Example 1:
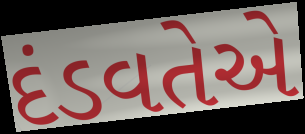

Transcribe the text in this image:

દંડવતેએ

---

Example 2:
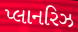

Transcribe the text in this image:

પ્લાનરિઝ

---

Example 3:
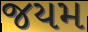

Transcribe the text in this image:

જયમ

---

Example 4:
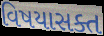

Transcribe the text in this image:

વિષયાસક્ત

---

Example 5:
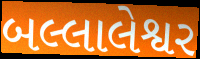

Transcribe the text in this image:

બલ્લાલેશ્વર